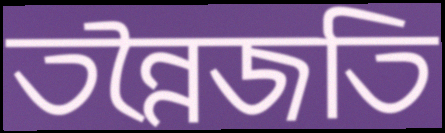
তন্নৈজতি